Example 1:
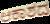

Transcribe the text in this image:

ಆಕಾಶದ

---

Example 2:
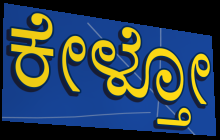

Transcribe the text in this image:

ಕೇಳ್ತೋ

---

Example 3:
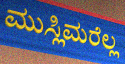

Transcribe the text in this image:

ಮುಸ್ಲಿಮರೆಲ್ಲ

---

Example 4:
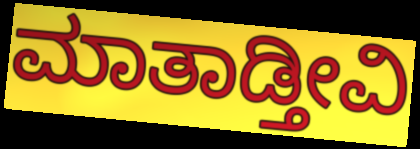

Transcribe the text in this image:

ಮಾತಾಡ್ತೀವಿ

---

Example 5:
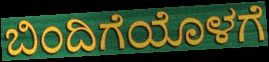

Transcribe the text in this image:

ಬಿಂದಿಗೆಯೊಳಗೆ